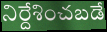
నిర్దేశించబడే